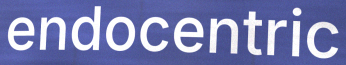
endocentric